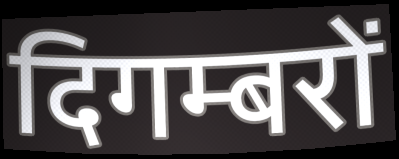
दिगम्बरों